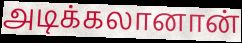
அடிக்கலானான்